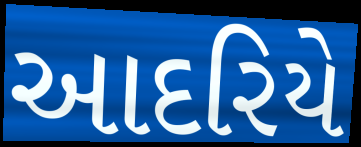
આદરિયે